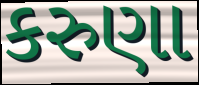
કરુણા